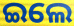
ଇଲେ